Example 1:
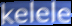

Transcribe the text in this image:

kelele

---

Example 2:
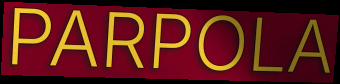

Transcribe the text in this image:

PARPOLA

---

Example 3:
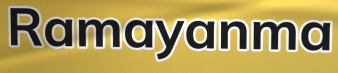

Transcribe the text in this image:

Ramayanma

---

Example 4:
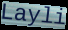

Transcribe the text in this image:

Layli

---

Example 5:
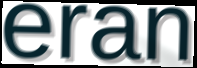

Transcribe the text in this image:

eran